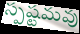
స్పష్టమవు